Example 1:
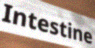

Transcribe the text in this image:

Intestine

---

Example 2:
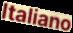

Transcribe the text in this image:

Italiano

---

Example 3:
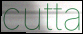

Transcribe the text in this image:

cutta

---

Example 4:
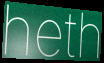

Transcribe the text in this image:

heth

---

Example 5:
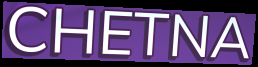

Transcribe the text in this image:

CHETNA